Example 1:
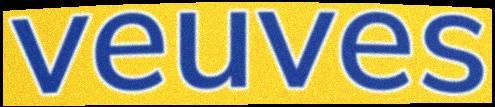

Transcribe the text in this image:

veuves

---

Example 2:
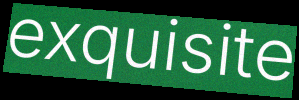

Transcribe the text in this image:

exquisite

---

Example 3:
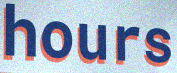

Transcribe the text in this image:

hours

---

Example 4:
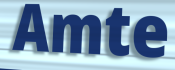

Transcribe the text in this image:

Amte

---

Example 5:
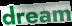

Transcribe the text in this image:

dream